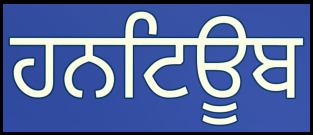
ਹਨਟਿਊਬ